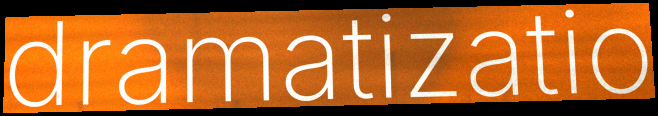
dramatizatio